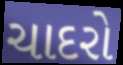
ચાદરો